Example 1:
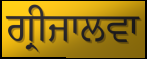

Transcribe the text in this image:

ਗ੍ਰੀਜਾਲਵਾ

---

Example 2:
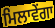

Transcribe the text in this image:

ਮਿਲਾਵੇਂਗਾ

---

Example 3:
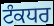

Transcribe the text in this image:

ਟੰਕਧਰ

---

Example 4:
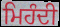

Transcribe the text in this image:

ਮਿਹੰਦੀ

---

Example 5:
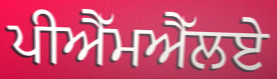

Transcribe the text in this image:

ਪੀਐੱਮਐੱਲਏ